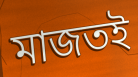
মাজতই